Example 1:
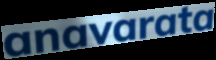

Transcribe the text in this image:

anavarata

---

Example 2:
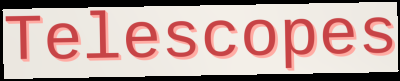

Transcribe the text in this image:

Telescopes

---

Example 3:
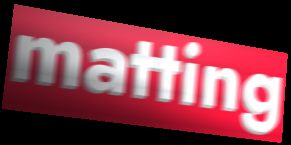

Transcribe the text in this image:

matting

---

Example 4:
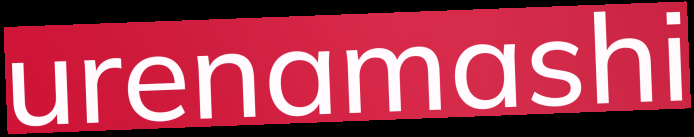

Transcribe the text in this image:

urenamashi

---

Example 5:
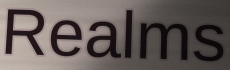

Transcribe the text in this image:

Realms